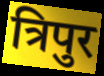
त्रिपुर